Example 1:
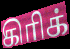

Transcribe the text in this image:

கிரிக்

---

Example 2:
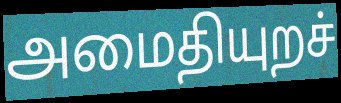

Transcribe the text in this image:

அமைதியுறச்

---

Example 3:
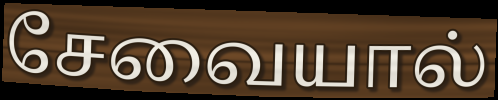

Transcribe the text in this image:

சேவையால்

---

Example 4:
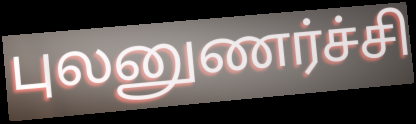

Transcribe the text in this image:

புலனுணர்ச்சி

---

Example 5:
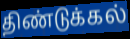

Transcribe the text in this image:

திண்டுக்கல்